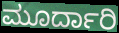
ಮೂರ್ದಾರಿ